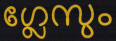
ഗ്ലേസും